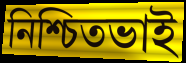
নিশ্চিতভাই